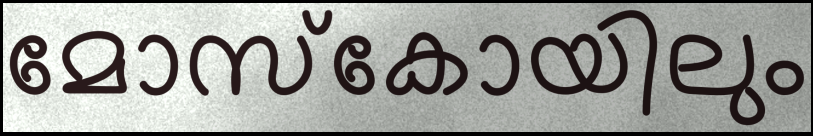
മോസ്കോയിലും